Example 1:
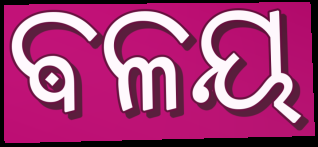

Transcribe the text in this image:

ଵଳୟ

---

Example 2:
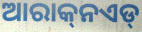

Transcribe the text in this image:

ଆରାକ୍‌ନଏଡ୍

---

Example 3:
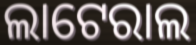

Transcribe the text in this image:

ଲାଟେରାଲ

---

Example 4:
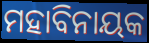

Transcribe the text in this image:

ମହାବିନାୟକ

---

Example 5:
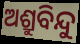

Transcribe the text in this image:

ଅଶ୍ରୁବିନ୍ଦୁ